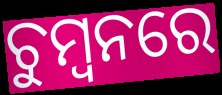
ଚୁମ୍ବନରେ